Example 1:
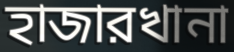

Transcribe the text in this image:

হাজারখানা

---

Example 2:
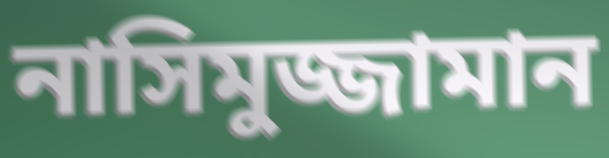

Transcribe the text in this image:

নাসিমুজ্জামান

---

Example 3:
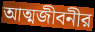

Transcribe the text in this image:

আত্মজীবনীর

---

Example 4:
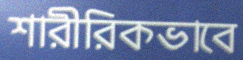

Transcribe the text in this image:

শারীরিকভাবে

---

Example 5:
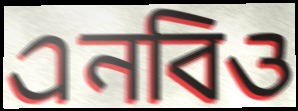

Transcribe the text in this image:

এনবিও